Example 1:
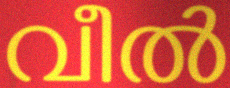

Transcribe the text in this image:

വീൽ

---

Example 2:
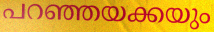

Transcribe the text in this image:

പറഞ്ഞയക്കയും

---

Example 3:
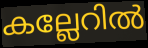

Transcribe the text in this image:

കല്ലേറിൽ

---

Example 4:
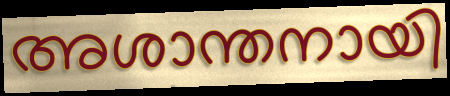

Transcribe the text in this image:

അശാന്തനായി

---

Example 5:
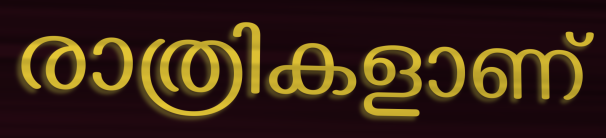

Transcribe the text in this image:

രാത്രികളാണ്